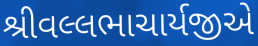
શ્રીવલ્લભાચાર્યજીએ